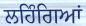
ਲਹਿੰਗਿਆਂ